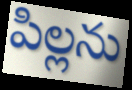
పిల్లను